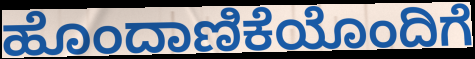
ಹೊಂದಾಣಿಕೆಯೊಂದಿಗೆ